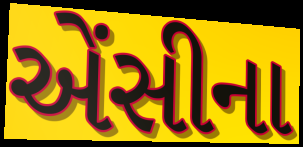
એંસીના